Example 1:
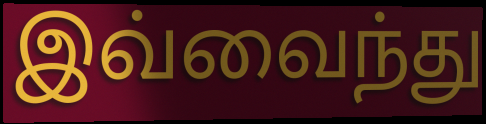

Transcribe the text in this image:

இவ்வைந்து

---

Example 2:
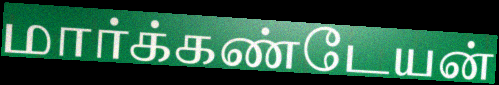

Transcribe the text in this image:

மார்க்கண்டேயன்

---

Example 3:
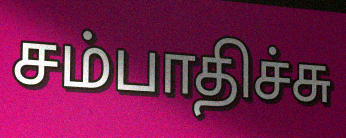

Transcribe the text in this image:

சம்பாதிச்சு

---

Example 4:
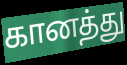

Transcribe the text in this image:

கானத்து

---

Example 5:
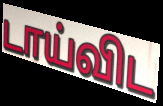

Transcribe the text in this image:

டாய்விட